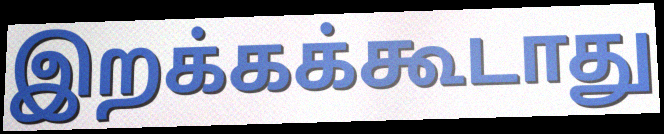
இறக்கக்கூடாது